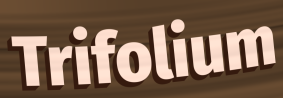
Trifolium